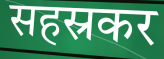
सहस्रकर